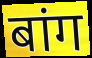
बांग